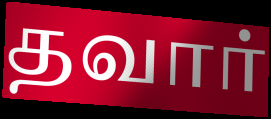
தவார்